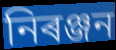
নিৰঞ্জন